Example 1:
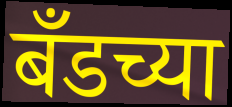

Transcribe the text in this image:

बँडच्या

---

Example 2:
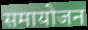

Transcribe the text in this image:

समायोजन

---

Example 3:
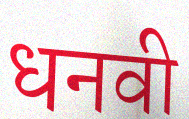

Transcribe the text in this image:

धनवी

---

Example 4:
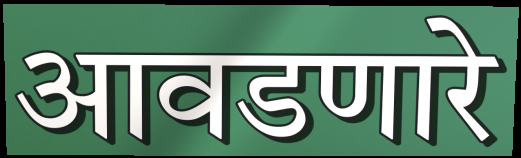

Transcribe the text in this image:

आवडणारे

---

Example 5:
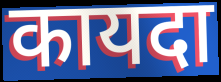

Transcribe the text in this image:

कायदा